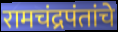
रामचंद्रपंतांचे